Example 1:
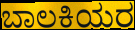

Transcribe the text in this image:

ಬಾಲಕಿಯರ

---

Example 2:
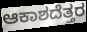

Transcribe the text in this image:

ಆಕಾಶದೆತ್ತರ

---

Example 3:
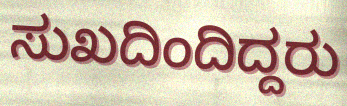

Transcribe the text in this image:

ಸುಖದಿಂದಿದ್ದರು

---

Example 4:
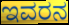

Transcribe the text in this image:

ಇವರನ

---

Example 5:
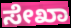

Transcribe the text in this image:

ಸೇಖಾ